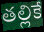
తల్లికే